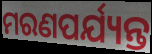
ମରଣପର୍ଯ୍ୟନ୍ତ